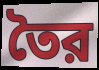
তৈর